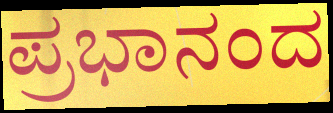
ಪ್ರಭಾನಂದ